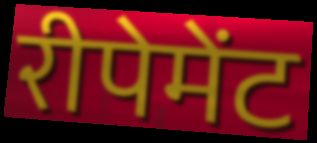
रीपेमेंट